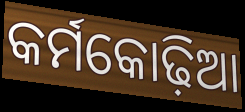
କର୍ମକୋଢ଼ିଆ